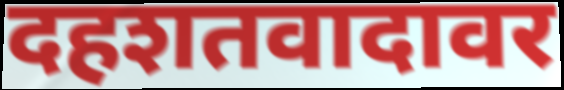
दहशतवादावर